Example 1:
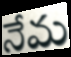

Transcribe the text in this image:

నేమ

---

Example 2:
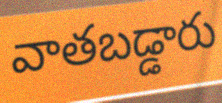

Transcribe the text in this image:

వాతబడ్డారు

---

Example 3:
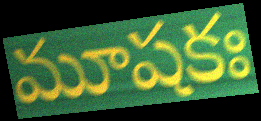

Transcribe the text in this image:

మూషకః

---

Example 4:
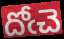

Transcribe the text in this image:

దోఁచె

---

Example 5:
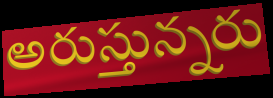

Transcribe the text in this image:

అరుస్తున్నరు